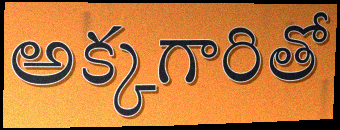
అక్కగారితో